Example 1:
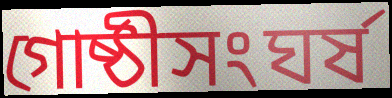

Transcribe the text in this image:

গোষ্ঠীসংঘৰ্ষ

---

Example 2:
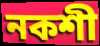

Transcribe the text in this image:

নকশী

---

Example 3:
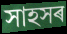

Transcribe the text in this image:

সাহসৰ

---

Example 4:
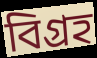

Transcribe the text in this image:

বিগ্ৰহ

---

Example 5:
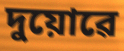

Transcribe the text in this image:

দুয়োৱে